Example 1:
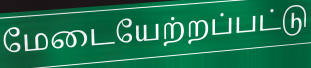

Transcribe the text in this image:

மேடையேற்றப்பட்டு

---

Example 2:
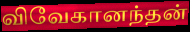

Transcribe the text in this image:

விவேகானந்தன்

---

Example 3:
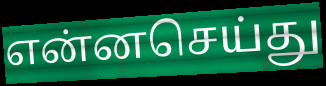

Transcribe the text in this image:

என்னசெய்து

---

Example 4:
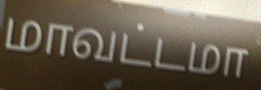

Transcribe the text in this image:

மாவட்டமா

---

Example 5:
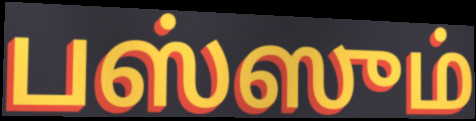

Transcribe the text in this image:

பஸ்ஸும்